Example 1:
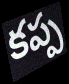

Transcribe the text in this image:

కప్ప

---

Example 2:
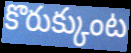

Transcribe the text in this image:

కొరుక్కుంట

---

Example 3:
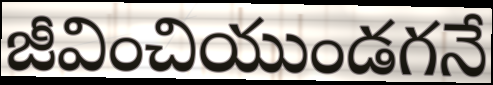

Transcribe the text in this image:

జీవించియుండగనే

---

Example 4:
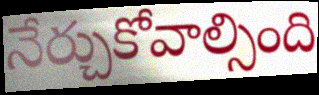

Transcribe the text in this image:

నేర్చుకోవాల్సింది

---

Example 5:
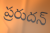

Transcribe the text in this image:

ప్రరుదన్